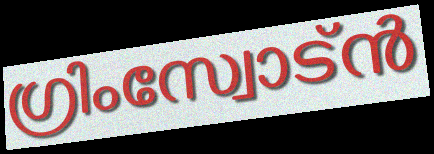
ഗ്രിംസ്വോട്ൻ